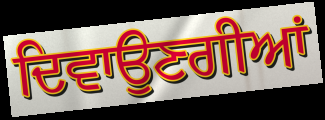
ਦਿਵਾਉਣਗੀਆਂ